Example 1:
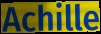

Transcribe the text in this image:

Achille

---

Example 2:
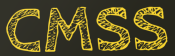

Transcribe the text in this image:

CMSS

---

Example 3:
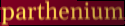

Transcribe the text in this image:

parthenium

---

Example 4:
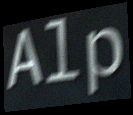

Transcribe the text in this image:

Alp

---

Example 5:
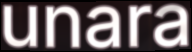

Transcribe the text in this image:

unara